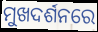
ମୁଖଦର୍ଶନରେ